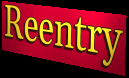
Reentry